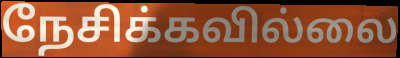
நேசிக்கவில்லை